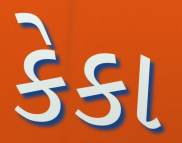
કેકા